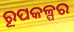
ରୂପକଳ୍ପର